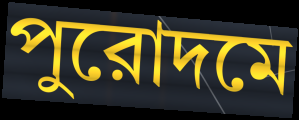
পুরোদমে